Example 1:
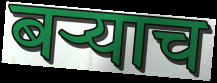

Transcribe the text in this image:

बर्‍याच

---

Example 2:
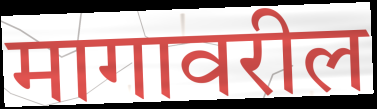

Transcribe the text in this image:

मागावरील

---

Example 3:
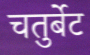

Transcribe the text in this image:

चतुर्बेट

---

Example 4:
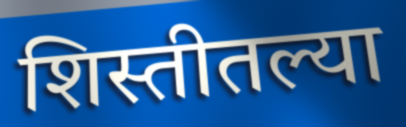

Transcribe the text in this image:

शिस्तीतल्या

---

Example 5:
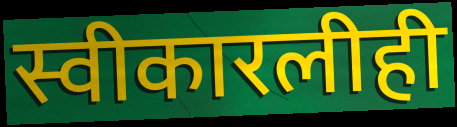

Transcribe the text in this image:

स्वीकारलीही